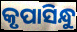
କୃପାସିନ୍ଧୁ